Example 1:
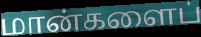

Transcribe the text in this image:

மான்களைப்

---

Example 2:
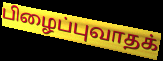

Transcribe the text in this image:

பிழைப்புவாதக்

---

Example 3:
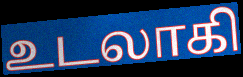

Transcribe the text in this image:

உடலாகி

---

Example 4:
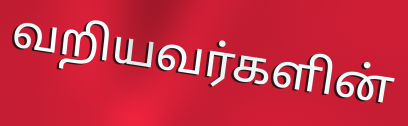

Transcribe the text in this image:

வறியவர்களின்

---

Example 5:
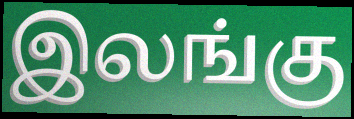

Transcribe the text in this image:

இலங்கு